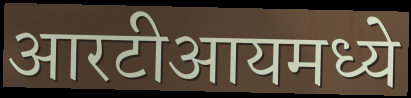
आरटीआयमध्ये